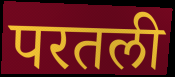
परतली